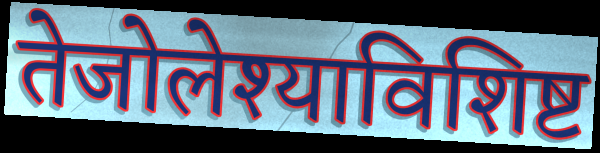
तेजोलेश्याविशिष्ट